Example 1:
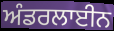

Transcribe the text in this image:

ਅੰਡਰਲਾਈਨ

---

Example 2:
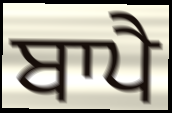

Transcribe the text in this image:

ਬਾਪੈ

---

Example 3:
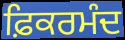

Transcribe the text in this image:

ਫ਼ਿਕਰਮੰਦ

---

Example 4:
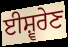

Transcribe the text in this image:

ਈਸ਼੍ਵਰੇਣ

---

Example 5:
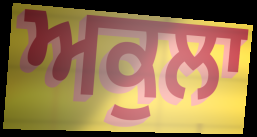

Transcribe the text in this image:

ਅਕੁਲਾ